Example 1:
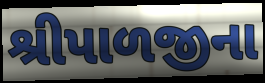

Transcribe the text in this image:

શ્રીપાળજીના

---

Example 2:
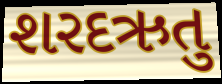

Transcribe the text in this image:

શરદઋતુ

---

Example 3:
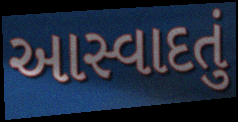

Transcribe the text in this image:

આસ્વાદતું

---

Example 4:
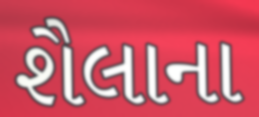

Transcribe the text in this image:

શૈલાના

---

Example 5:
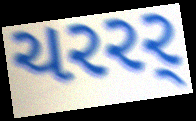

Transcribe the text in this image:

ચરરર્